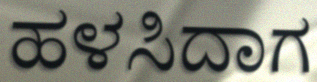
ಹಳಸಿದಾಗ